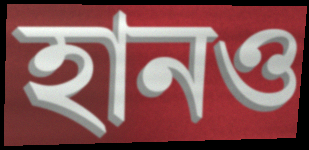
হানও